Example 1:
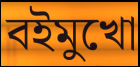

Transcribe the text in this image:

বইমুখো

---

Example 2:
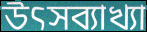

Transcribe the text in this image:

উৎসব্যাখ্যা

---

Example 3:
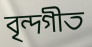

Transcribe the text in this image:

বৃন্দগীত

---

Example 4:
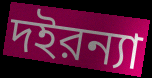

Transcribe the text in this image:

দইরন্যা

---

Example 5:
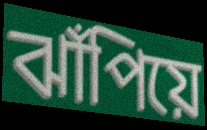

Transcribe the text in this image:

ঝাঁপিয়ে